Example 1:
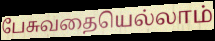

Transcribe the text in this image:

பேசுவதையெல்லாம்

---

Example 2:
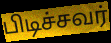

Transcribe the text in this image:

பிடிச்சவர்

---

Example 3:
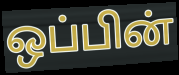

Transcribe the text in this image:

ஒப்பின்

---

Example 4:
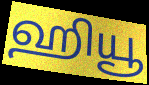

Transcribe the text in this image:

ஹியூ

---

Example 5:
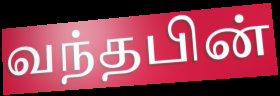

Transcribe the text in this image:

வந்தபின்